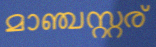
മാഞ്ചസ്റ്റര്